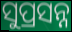
ସୁପ୍ରସନ୍ନ